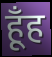
हूँह